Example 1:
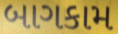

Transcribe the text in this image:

બાગકામ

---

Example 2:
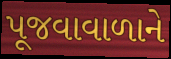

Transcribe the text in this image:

પૂજવાવાળાને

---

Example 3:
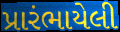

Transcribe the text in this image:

પ્રારંભાયેલી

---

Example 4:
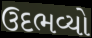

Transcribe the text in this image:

ઉદભવ્યો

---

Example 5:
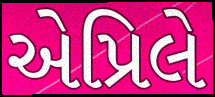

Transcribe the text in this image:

એપ્રિલે